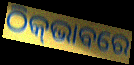
ଠିକ୍‌ଭାବରେ